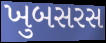
ખુબસરસ